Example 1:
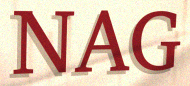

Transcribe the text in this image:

NAG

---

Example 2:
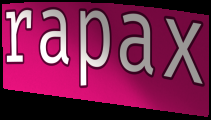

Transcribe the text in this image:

rapax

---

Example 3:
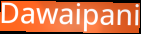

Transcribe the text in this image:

Dawaipani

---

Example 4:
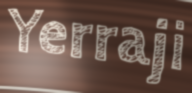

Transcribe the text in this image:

Yerraji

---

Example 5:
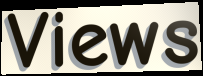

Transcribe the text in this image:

Views